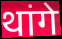
थांगे